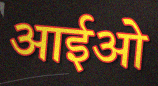
आईओ